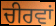
ਚੀਰਵਾਂ